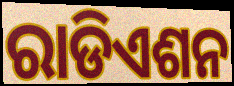
ରାଡିଏଶନ